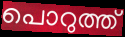
പൊറുത്ത്